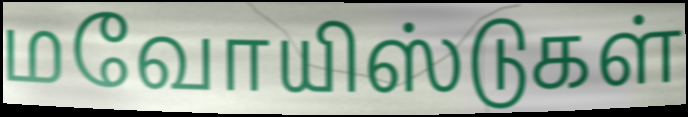
மவோயிஸ்டுகள்